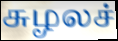
சுழலச்